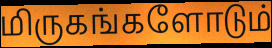
மிருகங்களோடும்